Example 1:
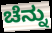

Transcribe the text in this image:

ಚೆನ್ನು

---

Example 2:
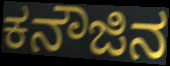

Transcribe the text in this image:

ಕನೌಜಿನ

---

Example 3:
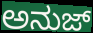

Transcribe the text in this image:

ಅನುಜ್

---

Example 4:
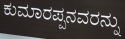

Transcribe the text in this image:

ಕುಮಾರಪ್ಪನವರನ್ನು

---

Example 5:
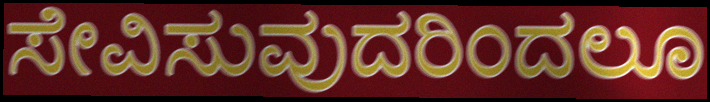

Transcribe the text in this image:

ಸೇವಿಸುವುದರಿಂದಲೂ